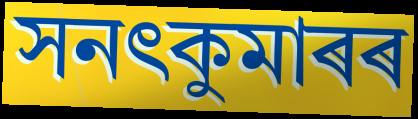
সনৎকুমাৰৰ